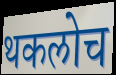
थकलोच